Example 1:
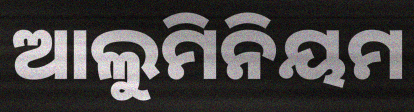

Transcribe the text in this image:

ଆଲୁମିନିୟମ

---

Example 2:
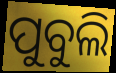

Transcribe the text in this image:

ପୁବୁଲି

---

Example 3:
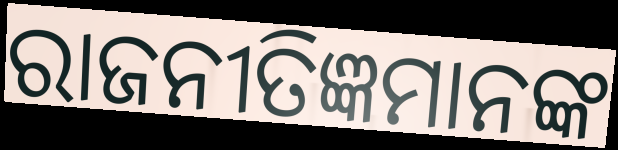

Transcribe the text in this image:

ରାଜନୀତିଜ୍ଞମାନଙ୍କ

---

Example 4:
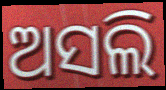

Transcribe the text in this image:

ଅସଲି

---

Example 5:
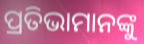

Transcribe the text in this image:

ପ୍ରତିଭାମାନଙ୍କୁ